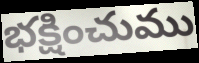
భక్షించుము